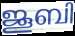
ജൂബി